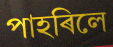
পাহৰিলে